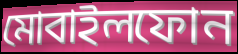
মোবাইলফোন